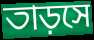
তাড়সে